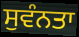
ਸੁਵੰਨਤਾ